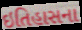
ઇતિહાસના